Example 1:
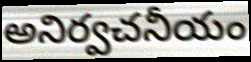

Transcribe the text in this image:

అనిర్వచనీయం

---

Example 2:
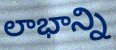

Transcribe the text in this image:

లాభాన్ని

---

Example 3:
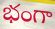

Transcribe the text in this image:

భంగా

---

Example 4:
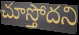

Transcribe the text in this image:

చూస్తోదని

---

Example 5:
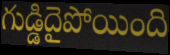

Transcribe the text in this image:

గుడ్డిదైపోయింది